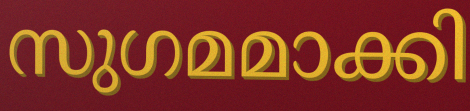
സുഗമമാക്കി